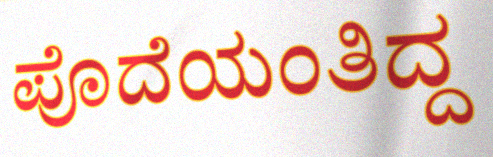
ಪೊದೆಯಂತಿದ್ದ